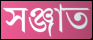
সঞ্জাত